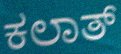
ಕಲಾತ್